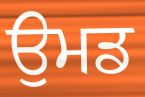
ਉਮਡ